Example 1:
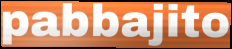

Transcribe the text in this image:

pabbajito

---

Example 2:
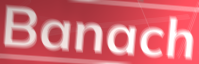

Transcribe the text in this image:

Banach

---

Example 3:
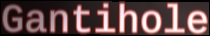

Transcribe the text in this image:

Gantihole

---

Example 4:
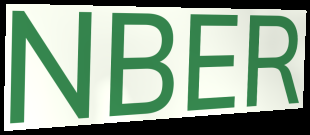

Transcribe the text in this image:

NBER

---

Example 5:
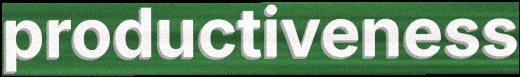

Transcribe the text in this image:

productiveness